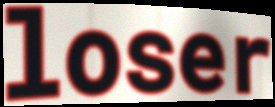
loser